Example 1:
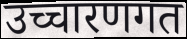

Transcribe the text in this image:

उच्चारणगत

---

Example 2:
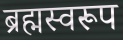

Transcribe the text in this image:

ब्रह्मस्वरूप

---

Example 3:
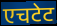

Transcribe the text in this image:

एचटेट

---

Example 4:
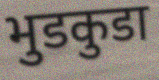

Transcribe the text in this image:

भुडकुडा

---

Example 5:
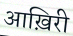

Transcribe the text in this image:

आख़िरी